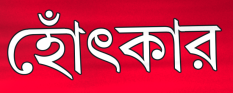
হোঁৎকার